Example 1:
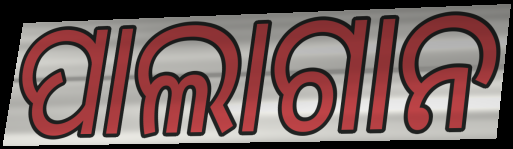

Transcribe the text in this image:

ପାଲାଗାନ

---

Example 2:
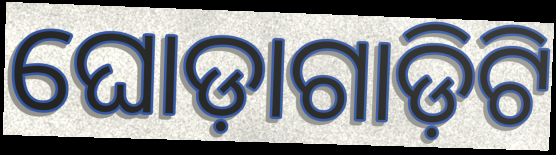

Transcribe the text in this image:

ଘୋଡ଼ାଗାଡ଼ିଟି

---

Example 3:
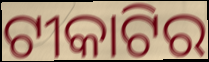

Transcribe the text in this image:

ଟୀକାଟିର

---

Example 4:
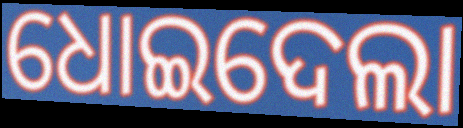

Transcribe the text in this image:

ଧୋଇଦେଲା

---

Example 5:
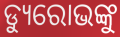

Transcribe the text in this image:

ଡ୍ୟୁରୋଭଙ୍କୁ